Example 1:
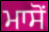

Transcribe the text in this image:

ਮਾਸੋਂ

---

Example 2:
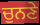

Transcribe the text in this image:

ਚੁਨਣੇ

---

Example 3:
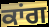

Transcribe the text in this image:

ਕਾਂਗ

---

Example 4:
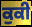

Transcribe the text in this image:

ਕੁਕੀ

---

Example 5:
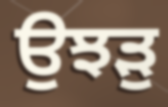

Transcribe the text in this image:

ਉਝੜੁ